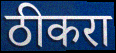
ठीकरा